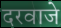
दरवाजे